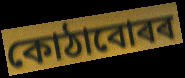
কোঠাবোৰৰ